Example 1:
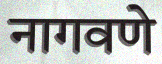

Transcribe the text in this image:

नागवणे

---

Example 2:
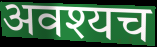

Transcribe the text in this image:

अवश्यच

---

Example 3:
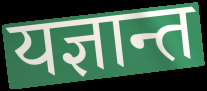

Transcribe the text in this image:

यज्ञान्त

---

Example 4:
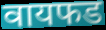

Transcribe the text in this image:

वायफड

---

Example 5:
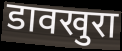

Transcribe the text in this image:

डावखुरा